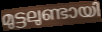
മുട്ടലുണ്ടായി